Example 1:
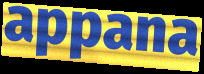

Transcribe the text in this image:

appana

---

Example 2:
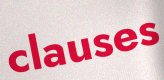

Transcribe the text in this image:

clauses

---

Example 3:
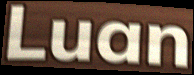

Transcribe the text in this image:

Luan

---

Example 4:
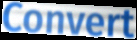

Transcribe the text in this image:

Convert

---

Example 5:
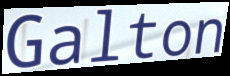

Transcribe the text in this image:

Galton